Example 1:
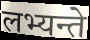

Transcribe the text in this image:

लभ्यन्ते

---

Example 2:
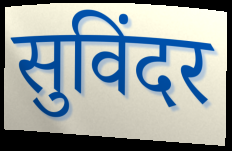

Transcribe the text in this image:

सुविंदर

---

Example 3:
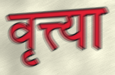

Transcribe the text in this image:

वृत्त्या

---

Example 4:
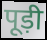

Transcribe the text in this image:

पूड़ी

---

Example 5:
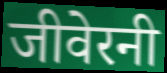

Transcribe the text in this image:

जीवेरनी